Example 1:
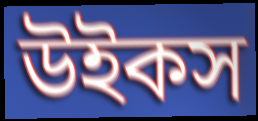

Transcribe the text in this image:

উইকস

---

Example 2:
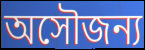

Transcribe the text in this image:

অসৌজন্য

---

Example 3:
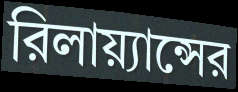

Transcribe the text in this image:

রিলায়্যান্সের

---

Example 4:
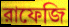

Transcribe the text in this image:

রাফেজি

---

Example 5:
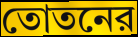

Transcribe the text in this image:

তোতনের